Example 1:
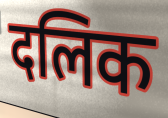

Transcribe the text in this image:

दलिक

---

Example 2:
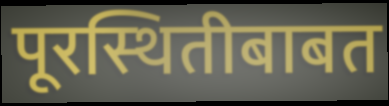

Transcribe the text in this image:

पूरस्थितीबाबत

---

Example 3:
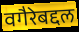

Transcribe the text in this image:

वगैरेबद्दल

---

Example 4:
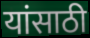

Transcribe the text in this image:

यांसाठी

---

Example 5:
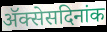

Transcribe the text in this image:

ॲक्सेसदिनांक